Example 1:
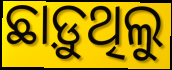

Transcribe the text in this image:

ଛାଡ଼ୁଥିଲୁ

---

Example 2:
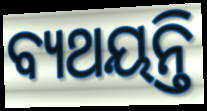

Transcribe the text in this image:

ବ୍ୟଥୟନ୍ତି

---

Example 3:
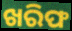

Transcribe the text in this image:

ଖରିଫ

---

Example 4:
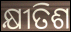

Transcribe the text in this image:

କ୍ଷୀତିଶ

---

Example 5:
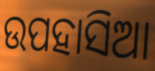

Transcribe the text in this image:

ଉପହାସିଆ